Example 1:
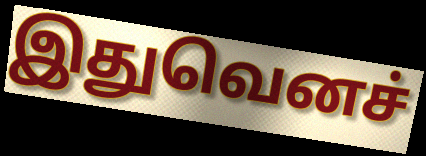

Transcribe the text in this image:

இதுவெனச்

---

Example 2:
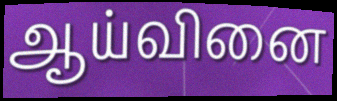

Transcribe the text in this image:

ஆய்வினை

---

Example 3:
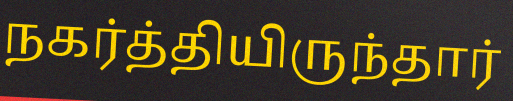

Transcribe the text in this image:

நகர்த்தியிருந்தார்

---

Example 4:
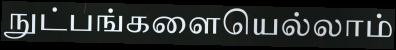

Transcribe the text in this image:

நுட்பங்களையெல்லாம்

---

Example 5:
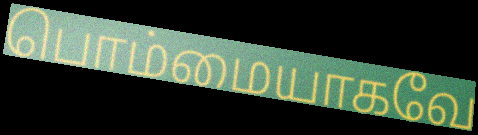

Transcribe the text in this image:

பொம்மையாகவே